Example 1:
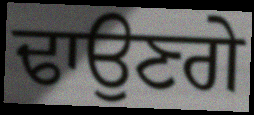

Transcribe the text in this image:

ਢਾਉਣਗੇ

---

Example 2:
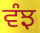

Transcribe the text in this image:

ਵੰਝ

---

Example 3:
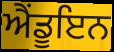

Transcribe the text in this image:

ਐਂਡੂਇਨ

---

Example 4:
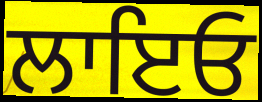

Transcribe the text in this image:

ਲਾਇਓ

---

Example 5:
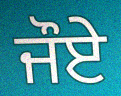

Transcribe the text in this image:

ਜੌਏ